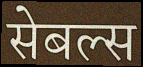
सेबल्स